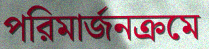
পরিমার্জনক্রমে